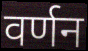
वर्णन